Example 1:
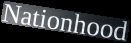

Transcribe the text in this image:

Nationhood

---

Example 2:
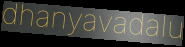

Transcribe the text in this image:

dhanyavadalu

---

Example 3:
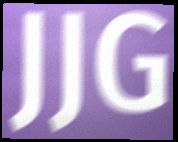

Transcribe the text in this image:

JJG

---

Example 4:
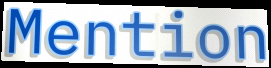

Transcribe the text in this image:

Mention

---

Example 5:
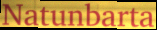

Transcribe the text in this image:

Natunbarta